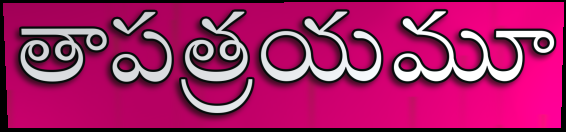
తాపత్రయమూ